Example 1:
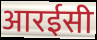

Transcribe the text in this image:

आरईसी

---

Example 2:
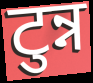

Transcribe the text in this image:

टुन्न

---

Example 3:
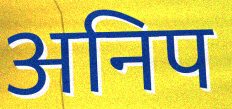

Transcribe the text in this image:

अनिप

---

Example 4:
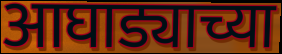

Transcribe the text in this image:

आघाड्याच्या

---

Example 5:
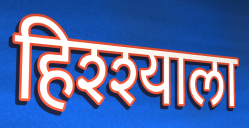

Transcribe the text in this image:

हिश्श्याला